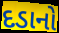
દડાનો